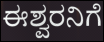
ಈಶ್ವರನಿಗೆ